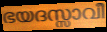
ഭയദസ്സാവീ